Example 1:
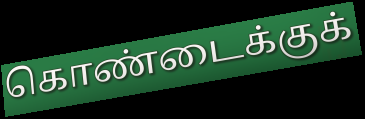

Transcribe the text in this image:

கொண்டைக்குக்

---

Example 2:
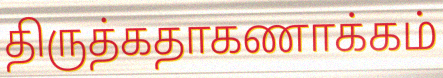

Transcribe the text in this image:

திருத்கதாகணாக்கம்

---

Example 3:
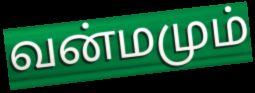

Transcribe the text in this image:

வன்மமும்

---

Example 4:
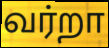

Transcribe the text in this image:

வர்றா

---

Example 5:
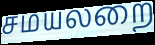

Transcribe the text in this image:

சமயலறை